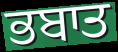
ਭਬਾਤ